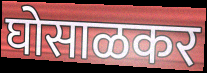
घोसाळकर